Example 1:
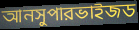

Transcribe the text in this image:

আনসুপারভাইজড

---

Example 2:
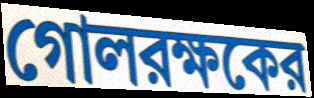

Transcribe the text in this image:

গোলরক্ষকের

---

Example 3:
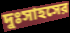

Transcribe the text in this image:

দুঃসাহসের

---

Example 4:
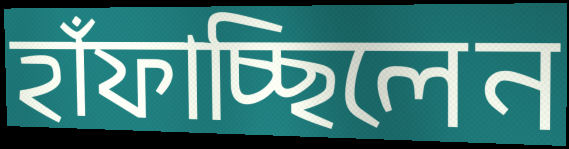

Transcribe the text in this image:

হাঁফাচ্ছিলেন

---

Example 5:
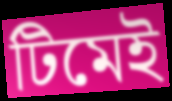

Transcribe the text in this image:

টিমেই